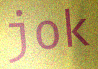
jok